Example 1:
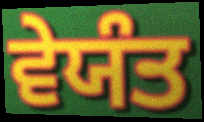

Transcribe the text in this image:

ਵੇਯੰਤ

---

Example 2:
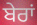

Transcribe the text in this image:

ਬੇਰਾਂ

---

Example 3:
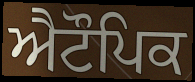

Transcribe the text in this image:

ਐਟੌਪਿਕ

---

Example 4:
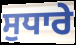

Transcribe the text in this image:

ਸੁਧਾਰੇ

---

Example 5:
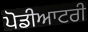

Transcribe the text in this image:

ਪੋਡੀਆਟਰੀ